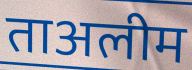
ताअलीम